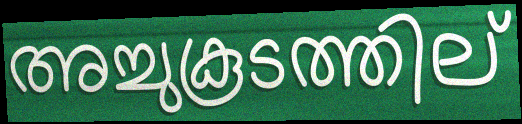
അച്ചുകൂടത്തില്